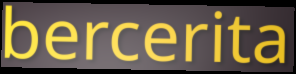
bercerita